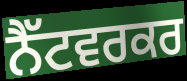
ਨੈੱਟਵਰਕਰ